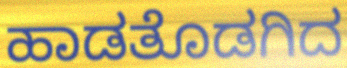
ಹಾಡತೊಡಗಿದ